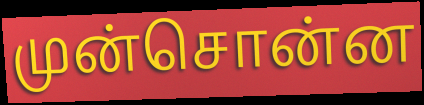
முன்சொன்ன